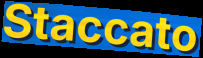
Staccato